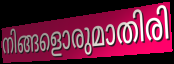
നിങ്ങളൊരുമാതിരി